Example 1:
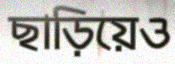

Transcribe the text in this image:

ছাড়িয়েও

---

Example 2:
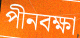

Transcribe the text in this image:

পীনবক্ষা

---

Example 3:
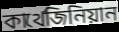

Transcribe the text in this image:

কার্থেজিনিয়ান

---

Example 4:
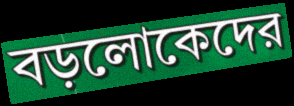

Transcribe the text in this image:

বড়লোকেদের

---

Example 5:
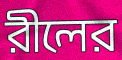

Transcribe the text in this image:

রীলের